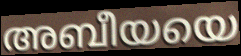
അബീയയെ